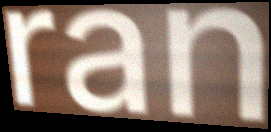
ran